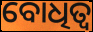
ବୋଧିତ୍ୱ